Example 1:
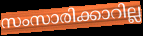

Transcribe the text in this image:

സംസാരിക്കാറില്ല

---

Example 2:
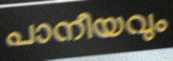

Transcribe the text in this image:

പാനീയവും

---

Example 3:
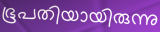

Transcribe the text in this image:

ഭൂപതിയായിരുന്നു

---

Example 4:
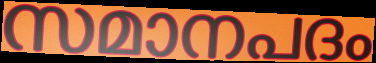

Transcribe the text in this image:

സമാനപദം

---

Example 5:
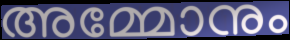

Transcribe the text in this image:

അമ്മോനും